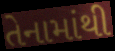
તેનામાંથી